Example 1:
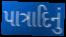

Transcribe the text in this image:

પાત્રાદિનું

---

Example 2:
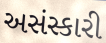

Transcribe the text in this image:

અસંસ્કારી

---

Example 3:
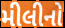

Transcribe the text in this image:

મીલીનો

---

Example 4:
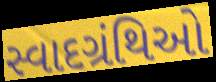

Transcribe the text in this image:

સ્વાદગ્રંથિઓ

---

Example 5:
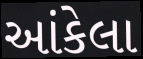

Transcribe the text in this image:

આંકેલા